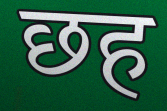
छह